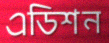
এডিশন